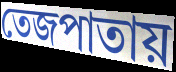
তেজপাতায়